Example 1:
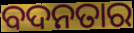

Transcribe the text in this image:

ବଦନତାର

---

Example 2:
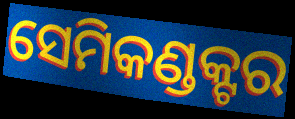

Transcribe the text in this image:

ସେମିକଣ୍ଡକ୍ଟର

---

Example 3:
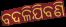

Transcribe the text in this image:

ବଦଳିଯିବଣି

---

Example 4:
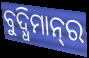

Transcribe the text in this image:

ବୁଦ୍ଧିମାନ୍‍ର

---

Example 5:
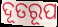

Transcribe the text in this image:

ଦୂତରୂପ